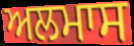
ਅਲਮਾਸ